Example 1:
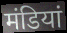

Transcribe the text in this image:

मंडियां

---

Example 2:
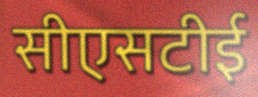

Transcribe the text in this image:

सीएसटीई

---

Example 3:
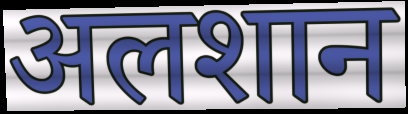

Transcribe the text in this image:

अलशान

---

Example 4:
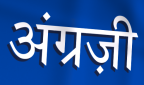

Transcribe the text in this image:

अंग्रज़ी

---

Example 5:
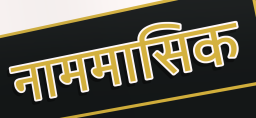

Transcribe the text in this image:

नाममासिक